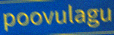
poovulagu